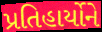
પ્રતિહાર્યોને